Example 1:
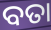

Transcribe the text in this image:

ବତା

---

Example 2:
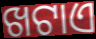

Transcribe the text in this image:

ଖଟାଏ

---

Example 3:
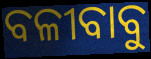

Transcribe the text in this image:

ବଳୀବାବୁ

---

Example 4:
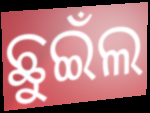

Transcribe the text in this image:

ଛୁଇଁଲ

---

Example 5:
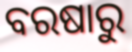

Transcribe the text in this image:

ବରଷାରୁ